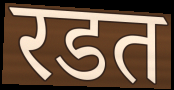
रडत